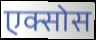
एक्सोस